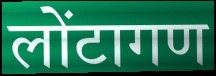
लोंटागण